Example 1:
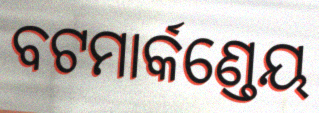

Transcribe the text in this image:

ବଟମାର୍କଣ୍ଡେୟ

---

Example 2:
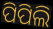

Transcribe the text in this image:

ପିପିଲି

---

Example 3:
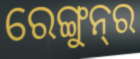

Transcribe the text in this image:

ରେଙ୍ଗୁନ୍‌ର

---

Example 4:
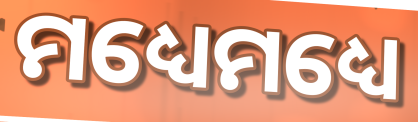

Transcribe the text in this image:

ମଧ୍ୟେମଧ୍ୟେ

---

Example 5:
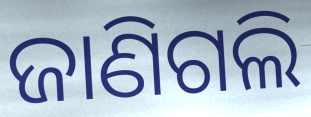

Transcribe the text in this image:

ଜାଣିଗଲି